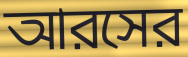
আরসের